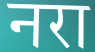
नरा